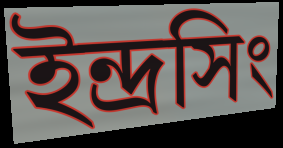
ইন্দ্রসিং